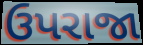
ઉપરાજા